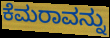
ಕೆಮರಾವನ್ನು